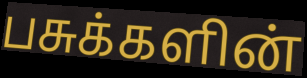
பசுக்களின்